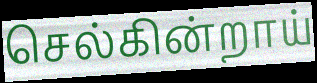
செல்கின்றாய்